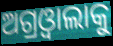
ଅଗ୍ରଓ୍ୱାଲାକୁ